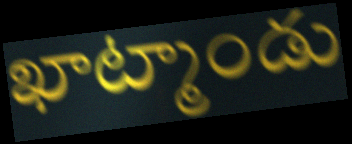
ఖాట్మాండు